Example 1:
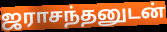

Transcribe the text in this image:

ஜராசந்தனுடன்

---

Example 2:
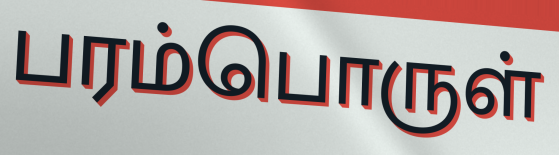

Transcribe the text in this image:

பரம்பொருள்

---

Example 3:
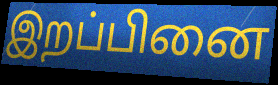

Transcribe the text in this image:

இறப்பினை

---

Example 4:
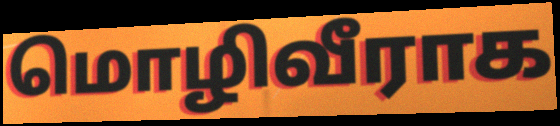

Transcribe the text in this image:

மொழிவீராக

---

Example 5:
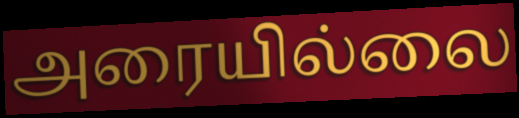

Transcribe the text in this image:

அரையில்லை